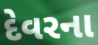
દેવરના